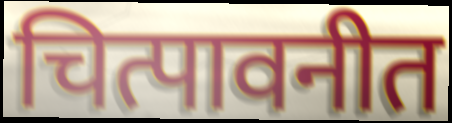
चित्पावनीत